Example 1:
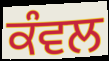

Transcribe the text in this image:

ਕੰਵਲ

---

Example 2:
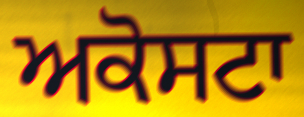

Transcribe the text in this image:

ਅਕੋਸਟਾ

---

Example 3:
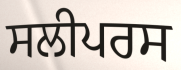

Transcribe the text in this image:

ਸਲੀਪਰਸ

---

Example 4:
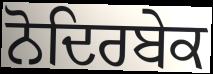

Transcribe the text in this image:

ਨੋਦਿਰਬੇਕ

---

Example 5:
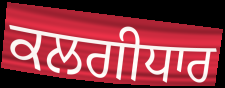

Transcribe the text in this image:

ਕਲਗੀਧਾਰ